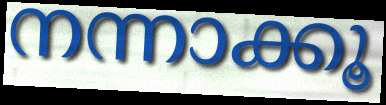
നന്നാക്കൂ